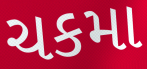
ચકમા